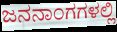
ಜನನಾಂಗಗಳಲ್ಲಿ